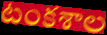
టంకశాల